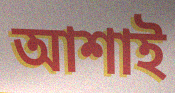
আশাই